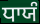
ਧਾਯੰ